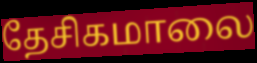
தேசிகமாலை